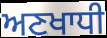
ਅਣਖਾਧੀ